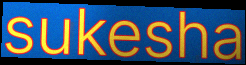
sukesha